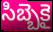
సిబ్బెకై